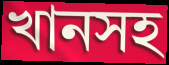
খানসহ